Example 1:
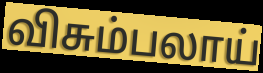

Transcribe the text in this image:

விசும்பலாய்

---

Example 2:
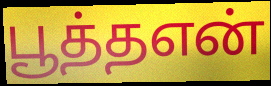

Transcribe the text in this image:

பூத்தஎன்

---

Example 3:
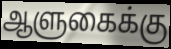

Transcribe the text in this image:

ஆளுகைக்கு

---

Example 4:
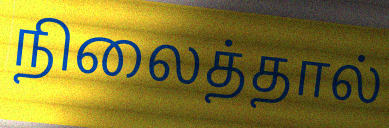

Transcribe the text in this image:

நிலைத்தால்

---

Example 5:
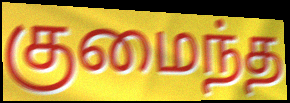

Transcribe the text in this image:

குமைந்த